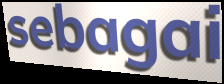
sebagai